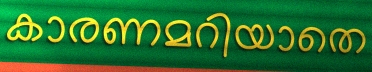
കാരണമറിയാതെ